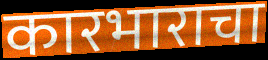
कारभाराचा